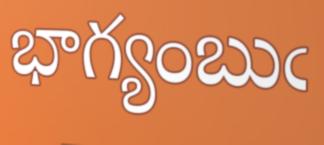
భాగ్యంబుఁ